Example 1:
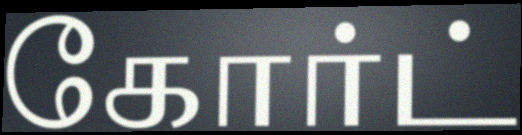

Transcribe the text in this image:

கோர்ட்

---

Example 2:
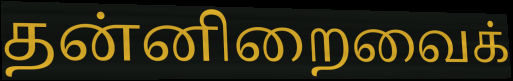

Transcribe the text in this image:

தன்னிறைவைக்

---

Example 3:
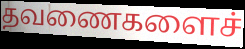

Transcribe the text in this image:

தவணைகளைச்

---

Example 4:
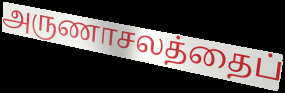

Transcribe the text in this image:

அருணாசலத்தைப்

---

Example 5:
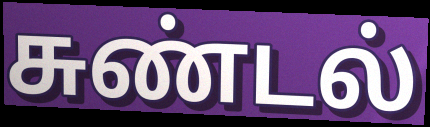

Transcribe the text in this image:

சுண்டல்